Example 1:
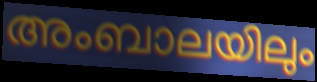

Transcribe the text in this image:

അംബാലയിലും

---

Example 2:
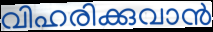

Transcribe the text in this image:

വിഹരിക്കുവാൻ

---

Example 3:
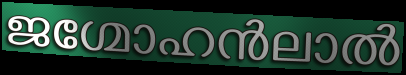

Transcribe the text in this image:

ജഗ്മോഹൻലാൽ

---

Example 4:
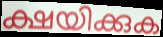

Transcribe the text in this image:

ക്ഷയിക്കുക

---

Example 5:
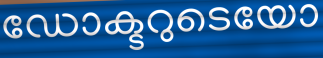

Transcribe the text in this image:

ഡോക്ടറുടെയോ